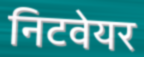
निटवेयर